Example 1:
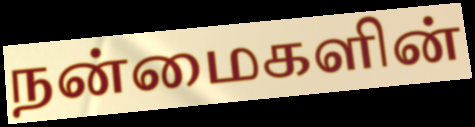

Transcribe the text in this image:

நன்மைகளின்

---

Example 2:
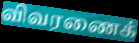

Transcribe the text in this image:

விவரணைக்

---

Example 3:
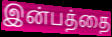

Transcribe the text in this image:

இன்பத்தை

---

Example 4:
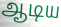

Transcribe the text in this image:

ஆடிய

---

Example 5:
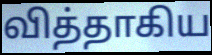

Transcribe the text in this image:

வித்தாகிய